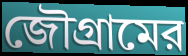
জৌগ্রামের